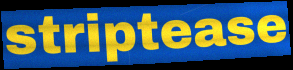
striptease